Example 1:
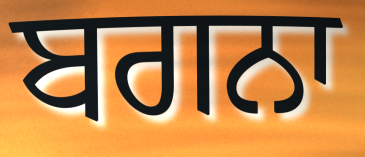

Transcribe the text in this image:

ਬਗਨਾ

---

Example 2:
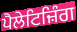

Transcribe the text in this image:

ਪੈਲੇਟਿਜ਼ਿੰਗ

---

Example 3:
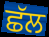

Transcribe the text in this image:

ਛੱਲ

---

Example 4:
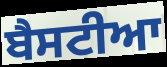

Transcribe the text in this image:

ਬੈਸਟੀਆ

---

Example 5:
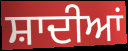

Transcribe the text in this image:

ਸ਼ਾਦੀਆਂ